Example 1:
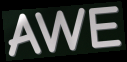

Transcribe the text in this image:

AWE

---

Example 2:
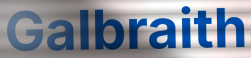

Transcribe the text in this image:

Galbraith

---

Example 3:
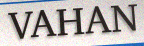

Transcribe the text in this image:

VAHAN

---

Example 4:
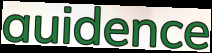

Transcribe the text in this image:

auidence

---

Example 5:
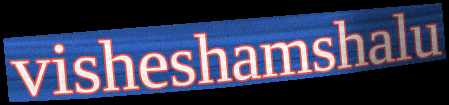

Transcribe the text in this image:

visheshamshalu